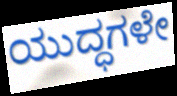
ಯುದ್ಧಗಳೇ